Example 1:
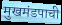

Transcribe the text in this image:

मुखमंडपाची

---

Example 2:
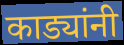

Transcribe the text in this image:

काड्यांनी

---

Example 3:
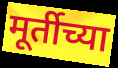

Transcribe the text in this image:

मूर्तीच्या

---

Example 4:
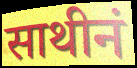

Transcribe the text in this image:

साथीनं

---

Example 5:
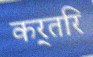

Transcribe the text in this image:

कर्तरि